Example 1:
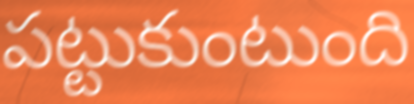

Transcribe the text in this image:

పట్టుకుంటుంది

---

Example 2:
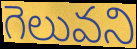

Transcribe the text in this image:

గెలువని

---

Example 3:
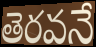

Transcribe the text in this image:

తెరవనే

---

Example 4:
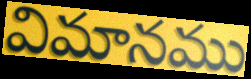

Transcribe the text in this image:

విమానము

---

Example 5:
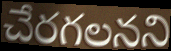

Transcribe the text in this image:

చేరగలనని